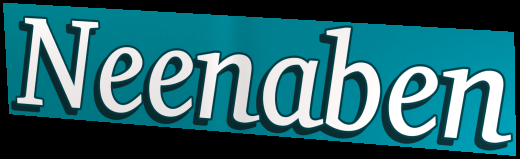
Neenaben